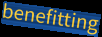
benefitting